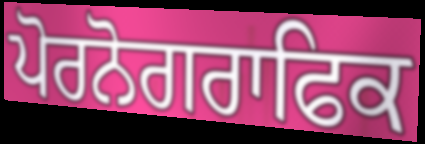
ਪੋਰਨੋਗਰਾਫਿਕ